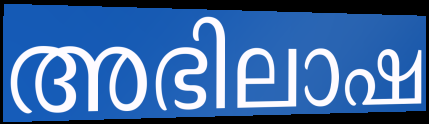
അഭിലാഷ